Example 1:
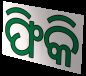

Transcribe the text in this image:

ଫିକି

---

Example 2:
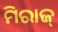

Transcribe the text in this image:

ମିରାଜ୍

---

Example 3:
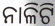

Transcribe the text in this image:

ନାଳିଟି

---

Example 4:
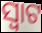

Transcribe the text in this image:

ସ୍ୱାଟ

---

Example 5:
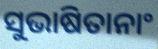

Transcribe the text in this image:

ସୁଭାଷିତାନାଂ